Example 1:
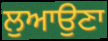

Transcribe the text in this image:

ਲੁਆਉਣਾ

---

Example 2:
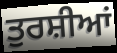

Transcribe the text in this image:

ਤੁਰਸ਼ੀਆਂ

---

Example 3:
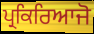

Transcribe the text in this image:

ਪ੍ਰਕਿਰਿਆਜੋ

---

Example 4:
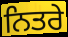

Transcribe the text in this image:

ਨਿਤਰੇ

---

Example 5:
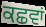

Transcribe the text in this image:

ਕਛਵਾਂ